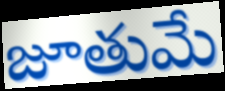
జూతుమే